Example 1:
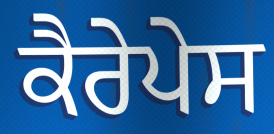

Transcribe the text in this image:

ਕੈਰੇਪੇਸ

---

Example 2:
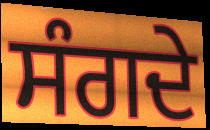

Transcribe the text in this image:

ਸੰਗਦੇ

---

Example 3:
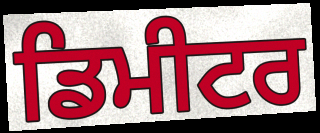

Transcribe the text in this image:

ਡਿਮੀਟਰ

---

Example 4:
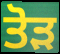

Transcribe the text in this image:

ਤੋਡ਼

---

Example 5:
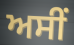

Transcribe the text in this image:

ਅਸੀੰ